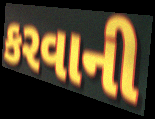
કરવાની